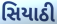
સિયાઠી